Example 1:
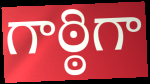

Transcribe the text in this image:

గాఠ్ఠిగా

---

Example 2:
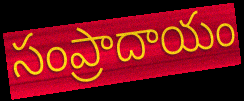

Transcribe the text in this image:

సంప్రాదాయం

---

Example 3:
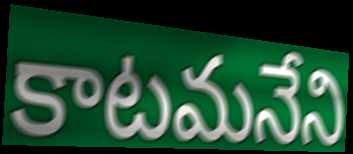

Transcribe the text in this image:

కాటమనేని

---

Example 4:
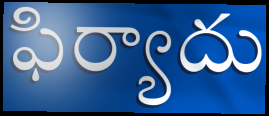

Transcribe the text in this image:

ఫిర్యాదు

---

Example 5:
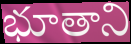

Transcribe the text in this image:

భూతాని